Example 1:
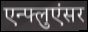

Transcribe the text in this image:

एन्फ्लुएंसर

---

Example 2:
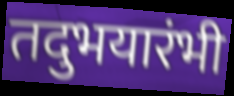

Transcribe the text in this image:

तदुभयारंभी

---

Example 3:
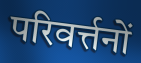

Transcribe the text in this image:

परिवर्त्तनों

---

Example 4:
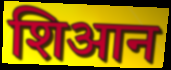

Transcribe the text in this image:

शिआन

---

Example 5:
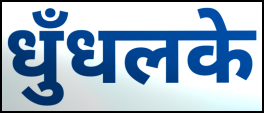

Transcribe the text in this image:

धुँधलके